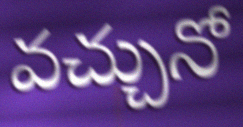
వచ్చునో